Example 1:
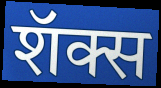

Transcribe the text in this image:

शॅक्स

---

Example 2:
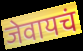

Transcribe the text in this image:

जेवायचं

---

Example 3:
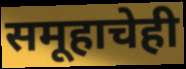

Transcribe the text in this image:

समूहाचेही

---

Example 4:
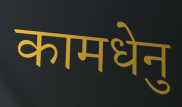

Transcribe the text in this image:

कामधेनु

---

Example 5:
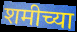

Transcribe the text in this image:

शमीच्या